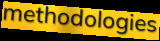
methodologies